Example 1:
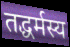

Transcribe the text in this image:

तद्धर्मस्य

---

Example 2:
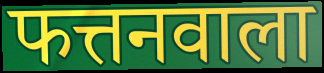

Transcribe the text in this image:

फत्तनवाला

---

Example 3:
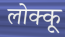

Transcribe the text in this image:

लोक्कू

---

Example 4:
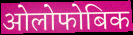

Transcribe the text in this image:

ओलोफोबिक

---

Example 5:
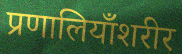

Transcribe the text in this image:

प्रणालियाँशरीर